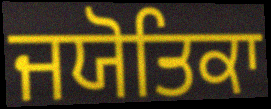
ਜਯੋਤਿਕਾ